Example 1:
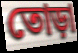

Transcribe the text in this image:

তোড়া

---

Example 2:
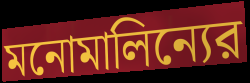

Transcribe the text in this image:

মনোমালিন্যের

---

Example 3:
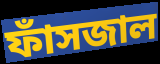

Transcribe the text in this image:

ফাঁসজাল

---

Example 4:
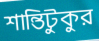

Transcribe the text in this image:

শান্তিটুকুর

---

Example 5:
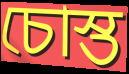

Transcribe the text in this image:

চোস্ত